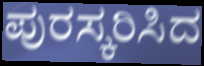
ಪುರಸ್ಕರಿಸಿದ